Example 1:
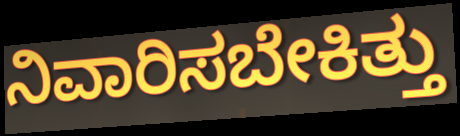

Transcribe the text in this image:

ನಿವಾರಿಸಬೇಕಿತ್ತು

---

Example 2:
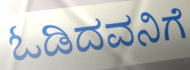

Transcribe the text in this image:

ಓಡಿದವನಿಗೆ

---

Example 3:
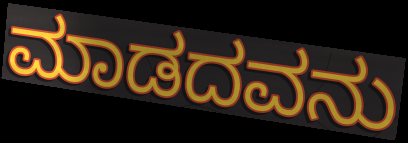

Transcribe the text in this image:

ಮಾಡದವನು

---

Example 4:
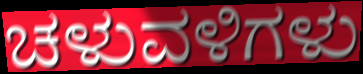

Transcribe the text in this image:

ಚಳುವಳಿಗಳು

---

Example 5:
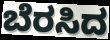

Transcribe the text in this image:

ಬೆರಸಿದ